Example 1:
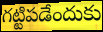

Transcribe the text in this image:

గట్టిపడేందుకు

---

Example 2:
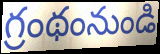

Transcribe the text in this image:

గ్రంథంనుండి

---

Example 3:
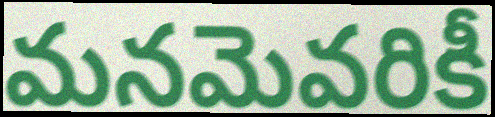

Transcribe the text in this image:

మనమెవరికీ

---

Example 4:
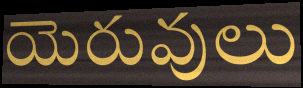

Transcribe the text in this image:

యెరువులు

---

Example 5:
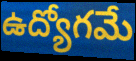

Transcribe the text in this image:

ఉద్యోగమే